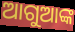
ଆଗୁଆଙ୍କ